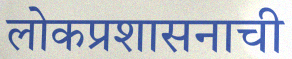
लोकप्रशासनाची